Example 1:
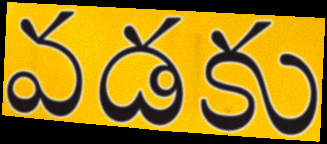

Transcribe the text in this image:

వడకు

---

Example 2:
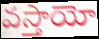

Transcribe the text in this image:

వస్తాయో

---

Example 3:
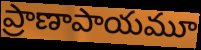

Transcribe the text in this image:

ప్రాణాపాయమూ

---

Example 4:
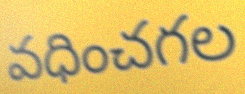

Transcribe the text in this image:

వధించగల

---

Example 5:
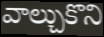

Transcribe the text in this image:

వాల్చుకొని